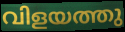
വിളയത്തു